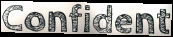
Confident